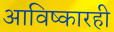
आविष्कारही